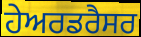
ਹੇਅਰਡਰੈਸਰ